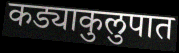
कड्याकुलुपात